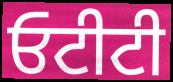
ਓਟੀਟੀ